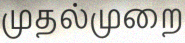
முதல்முறை